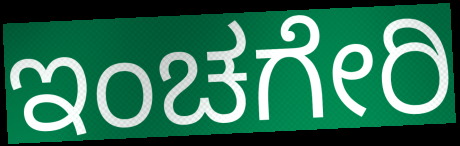
ಇಂಚಗೇರಿ